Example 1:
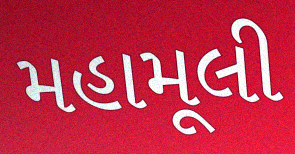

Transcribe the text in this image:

મહામૂલી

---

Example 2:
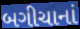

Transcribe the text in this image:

બગીચાનાં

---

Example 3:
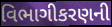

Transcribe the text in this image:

વિભાગીકરણની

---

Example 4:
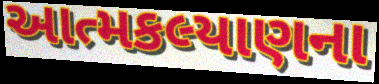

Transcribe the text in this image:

આત્મકલ્યાણના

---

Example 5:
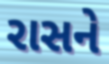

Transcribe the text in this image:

રાસને